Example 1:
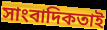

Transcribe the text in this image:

সাংবাদিকতাই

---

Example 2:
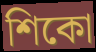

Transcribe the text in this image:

শিকো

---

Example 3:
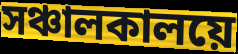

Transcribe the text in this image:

সঞ্চালকালয়ে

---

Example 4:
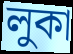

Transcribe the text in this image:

লুকা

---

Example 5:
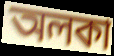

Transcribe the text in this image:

অলকা